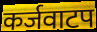
कर्जवाटप